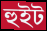
হুইট